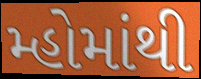
મ્હોમાંથી